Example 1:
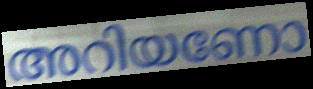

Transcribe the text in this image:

അറിയണോ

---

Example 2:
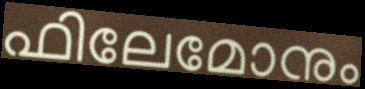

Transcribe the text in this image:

ഫിലേമോനും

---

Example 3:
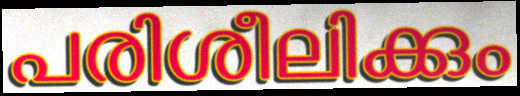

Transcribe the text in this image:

പരിശീലിക്കും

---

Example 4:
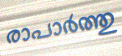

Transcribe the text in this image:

രാപാർത്തു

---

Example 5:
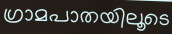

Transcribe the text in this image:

ഗ്രാമപാതയിലൂടെ